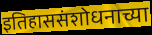
इतिहाससंशोधनाच्या